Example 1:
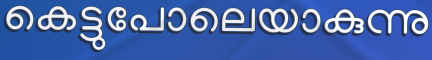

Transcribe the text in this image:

കെട്ടുപോലെയാകുന്നു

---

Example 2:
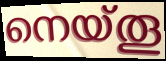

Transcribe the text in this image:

നെയ്തൂ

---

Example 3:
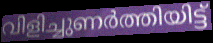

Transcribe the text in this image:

വിളിച്ചുണർത്തിയിട്ട്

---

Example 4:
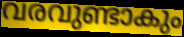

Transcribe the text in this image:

വരവുണ്ടാകും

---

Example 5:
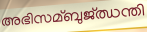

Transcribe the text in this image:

അഭിസമ്ബുജ്ഝന്തി